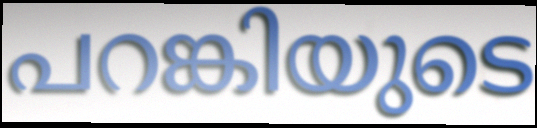
പറങ്കിയുടെ